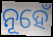
ନୂହେଁ